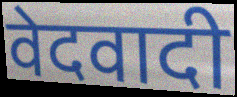
वेदवादी